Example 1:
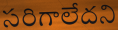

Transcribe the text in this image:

సరిగాలేదని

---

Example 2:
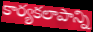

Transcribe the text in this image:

కార్యకలాపాన్ని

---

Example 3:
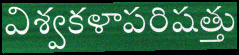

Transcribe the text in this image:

విశ్వకళాపరిషత్తు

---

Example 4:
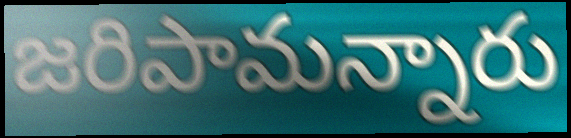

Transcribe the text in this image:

జరిపామన్నారు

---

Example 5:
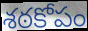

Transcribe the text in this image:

శఠకోపం